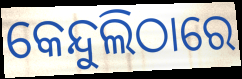
କେନ୍ଦୁଲିଠାରେ